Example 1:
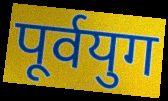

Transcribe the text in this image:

पूर्वयुग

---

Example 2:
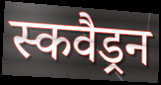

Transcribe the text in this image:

स्कवैड्रन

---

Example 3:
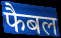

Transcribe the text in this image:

फैबल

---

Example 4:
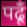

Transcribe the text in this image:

पढूँ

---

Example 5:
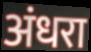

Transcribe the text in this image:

अंधरा